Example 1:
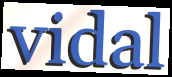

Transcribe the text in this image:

vidal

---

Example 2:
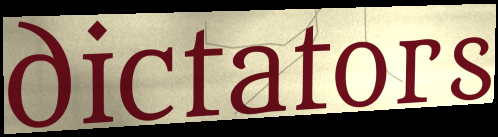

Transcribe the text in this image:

dictators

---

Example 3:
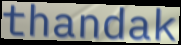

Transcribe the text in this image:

thandak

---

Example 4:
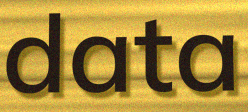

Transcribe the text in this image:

data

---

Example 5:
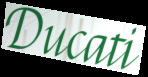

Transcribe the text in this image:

Ducati